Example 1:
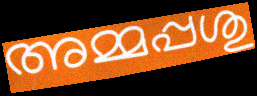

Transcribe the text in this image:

അമ്മപ്പശു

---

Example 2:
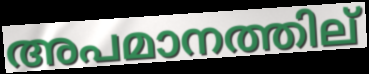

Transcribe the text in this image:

അപമാനത്തില്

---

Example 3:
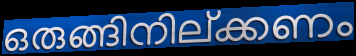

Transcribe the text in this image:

ഒരുങ്ങിനില്ക്കണം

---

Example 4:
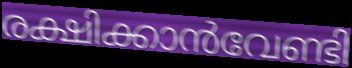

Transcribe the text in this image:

രക്ഷിക്കാൻവേണ്ടി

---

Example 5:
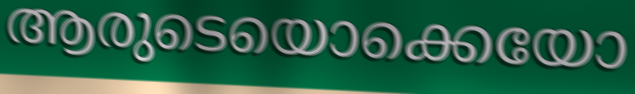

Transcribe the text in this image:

ആരുടെയൊക്കെയോ